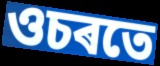
ওচৰতে